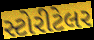
સ્ટોરીટેલર